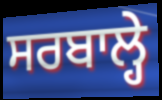
ਸਰਬਾਲ੍ਹੇ